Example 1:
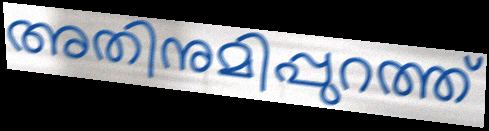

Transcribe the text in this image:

അതിനുമിപ്പുറത്ത്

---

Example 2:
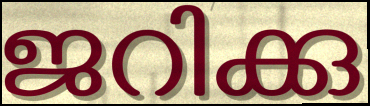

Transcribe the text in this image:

ജറിക്കു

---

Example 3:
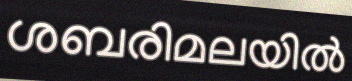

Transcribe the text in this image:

ശബരിമലയിൽ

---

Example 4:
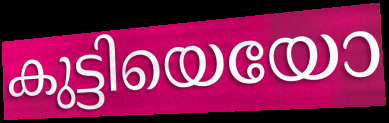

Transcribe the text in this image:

കുട്ടിയെയോ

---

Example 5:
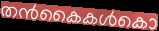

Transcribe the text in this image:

തൻകൈകൾകൊ